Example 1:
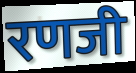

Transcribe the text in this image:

रणजी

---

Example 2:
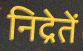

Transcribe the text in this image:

निद्रेतें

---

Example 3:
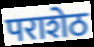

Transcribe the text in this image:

पराशेठ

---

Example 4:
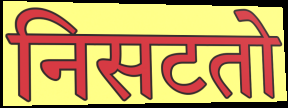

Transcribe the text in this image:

निसटतो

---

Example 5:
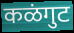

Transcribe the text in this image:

कळंगुट